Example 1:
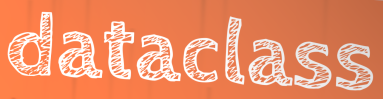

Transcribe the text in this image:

dataclass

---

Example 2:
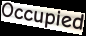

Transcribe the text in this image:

Occupied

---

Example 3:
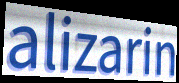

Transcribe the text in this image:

alizarin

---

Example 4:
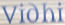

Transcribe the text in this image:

Vidhi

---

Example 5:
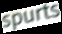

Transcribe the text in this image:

spurts